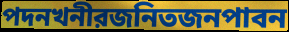
পদনখনীরজনিতজনপাবন